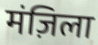
मंज़िला